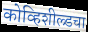
कोव्हिशील्डचा